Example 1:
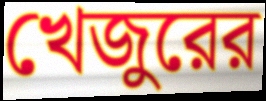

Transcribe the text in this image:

খেজুরের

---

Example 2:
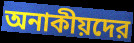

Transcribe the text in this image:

অনাকীয়দের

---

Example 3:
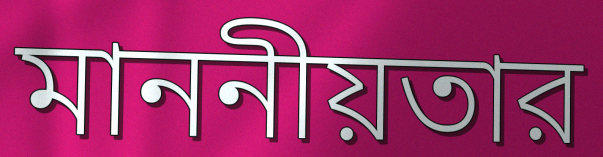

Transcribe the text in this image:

মাননীয়তার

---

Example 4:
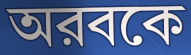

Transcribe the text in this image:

অরবকে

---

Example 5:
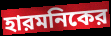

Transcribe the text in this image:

হারমনিকের